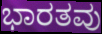
ಭಾರತವು